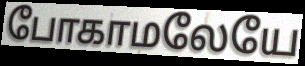
போகாமலேயே